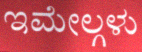
ಇಮೇಲ್ಗಳು